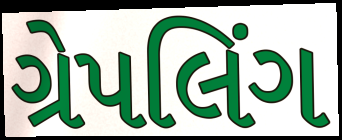
ગ્રેપલિંગ